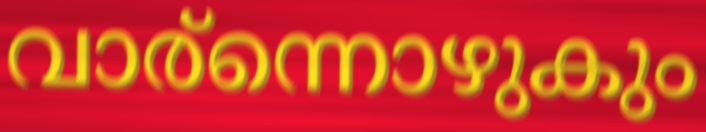
വാര്ന്നൊഴുകും